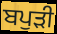
ਬਪੁੜੀ